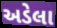
અડેલા